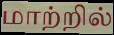
மாற்றில்